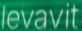
levavit